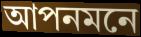
আপনমনে